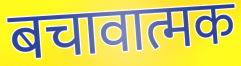
बचावात्मक